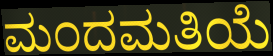
ಮಂದಮತಿಯೆ